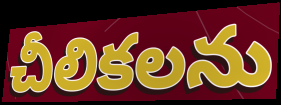
చీలికలను